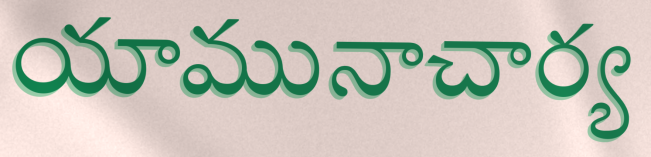
యామునాచార్య